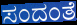
ಸಂದಂತೆ